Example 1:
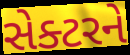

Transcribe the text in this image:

સેક્ટરને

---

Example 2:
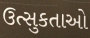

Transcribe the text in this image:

ઉત્સુકતાઓ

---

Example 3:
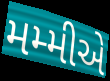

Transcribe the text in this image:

મમ્મીએ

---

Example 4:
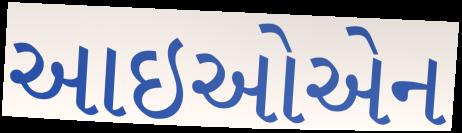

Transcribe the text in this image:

આઇઓએન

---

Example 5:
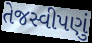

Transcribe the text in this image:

તેજસ્વીપણું